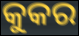
କୁକର